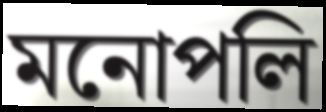
মনোপলি